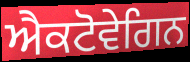
ਐਕਟੋਵੇਗਿਨ